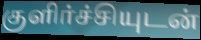
குளிர்ச்சியுடன்